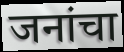
जनांचा